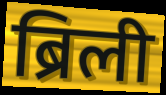
ब्रिली